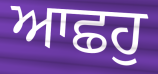
ਆਛਹੁ